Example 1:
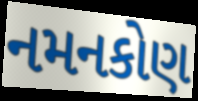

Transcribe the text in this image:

નમનકોણ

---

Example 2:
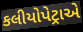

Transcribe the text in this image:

કલીયોપેટ્રાએ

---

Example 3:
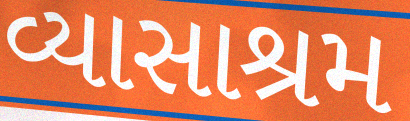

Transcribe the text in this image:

વ્યાસાશ્રમ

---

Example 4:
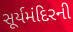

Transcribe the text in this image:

સૂર્યમંદિરની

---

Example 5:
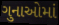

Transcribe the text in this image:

ગુનાઓમાં